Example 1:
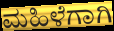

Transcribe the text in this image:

ಮಹಿಳೆಗಾಗಿ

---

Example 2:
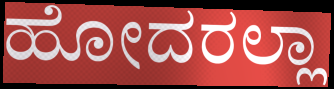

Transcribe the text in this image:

ಹೋದರಲ್ಲಾ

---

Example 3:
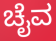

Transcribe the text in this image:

ಚೈವ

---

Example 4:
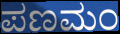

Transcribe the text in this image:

ಪಣಮಂ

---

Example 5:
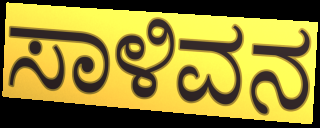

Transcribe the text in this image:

ಸಾಳಿವನ